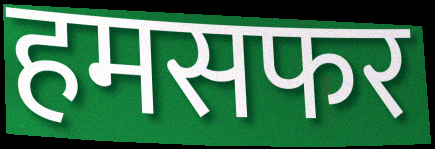
हमसफर